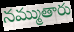
నమ్ముతారు